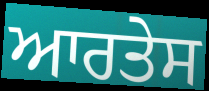
ਆਰਤੇਸ